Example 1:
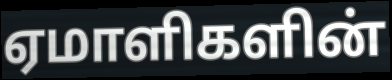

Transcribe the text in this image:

ஏமாளிகளின்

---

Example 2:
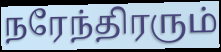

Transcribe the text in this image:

நரேந்திரரும்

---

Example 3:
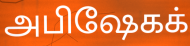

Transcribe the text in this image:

அபிஷேகக்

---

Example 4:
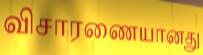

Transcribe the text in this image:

விசாரணையானது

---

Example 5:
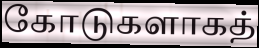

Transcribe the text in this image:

கோடுகளாகத்